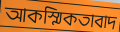
আকস্মিকতাবাদ